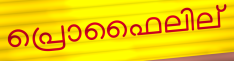
പ്രൊഫൈലില്